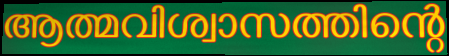
ആത്മവിശ്വാസത്തിന്റെ